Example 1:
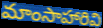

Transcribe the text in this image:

మాంసాహారివి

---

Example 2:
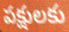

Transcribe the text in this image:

పక్షులకు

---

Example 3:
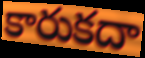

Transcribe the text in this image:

కారుకదా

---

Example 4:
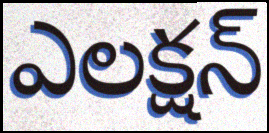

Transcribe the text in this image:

ఎలక్షన్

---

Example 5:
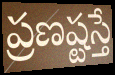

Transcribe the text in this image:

ప్రణష్టస్తే